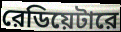
রেডিয়েটারে